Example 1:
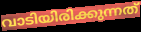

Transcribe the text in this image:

വാടിയിരിക്കുന്നത്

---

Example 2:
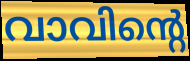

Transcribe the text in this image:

വാവിന്റെ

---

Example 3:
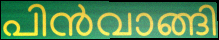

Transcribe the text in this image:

പിൻവാങ്ങി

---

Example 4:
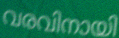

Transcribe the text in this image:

വരവിനായി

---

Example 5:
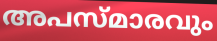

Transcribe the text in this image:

അപസ്മാരവും